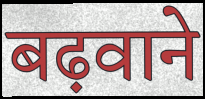
बढ़वाने